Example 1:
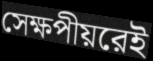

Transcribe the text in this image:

সেক্ষপীয়রেই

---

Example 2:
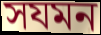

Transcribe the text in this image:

সযমন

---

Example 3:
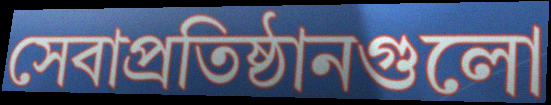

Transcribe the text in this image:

সেবাপ্রতিষ্ঠানগুলো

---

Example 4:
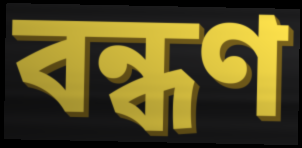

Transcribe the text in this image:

বন্ধণ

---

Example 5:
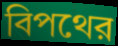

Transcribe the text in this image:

বিপথের